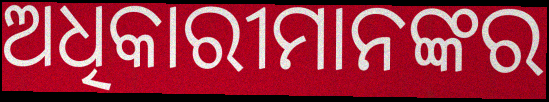
ଅଧିକାରୀମାନଙ୍କର